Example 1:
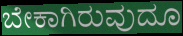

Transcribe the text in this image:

ಬೇಕಾಗಿರುವುದೂ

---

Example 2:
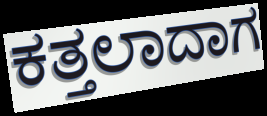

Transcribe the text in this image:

ಕತ್ತಲಾದಾಗ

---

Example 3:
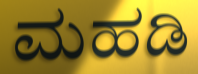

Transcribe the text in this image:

ಮಹಡಿ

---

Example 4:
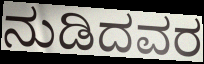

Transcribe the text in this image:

ನುಡಿದವರ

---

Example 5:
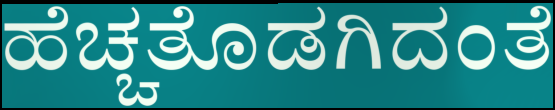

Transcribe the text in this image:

ಹೆಚ್ಚತೊಡಗಿದಂತೆ